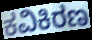
ಕವಿಕಿರಣ